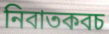
নিবাতকবচ